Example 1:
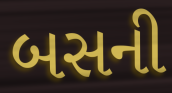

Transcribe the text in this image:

બસની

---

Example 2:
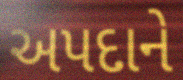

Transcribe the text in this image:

અપદાને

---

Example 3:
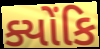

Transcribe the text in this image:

ક્યોંકિ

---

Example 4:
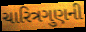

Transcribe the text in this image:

ચારિત્રગુણની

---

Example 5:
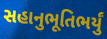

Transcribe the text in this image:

સહાનુભૂતિભર્યું